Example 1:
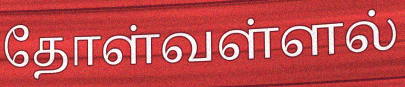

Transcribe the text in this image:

தோள்வள்ளல்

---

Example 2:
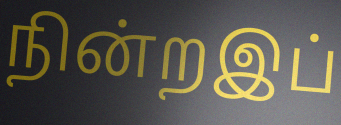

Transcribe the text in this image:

நின்றஇப்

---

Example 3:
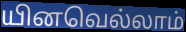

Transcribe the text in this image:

யினவெல்லாம்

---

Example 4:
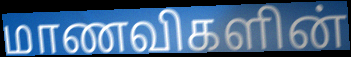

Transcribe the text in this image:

மாணவிகளின்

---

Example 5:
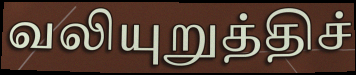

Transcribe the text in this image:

வலியுறுத்திச்